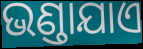
ଭଣ୍ଡାଯାଏ